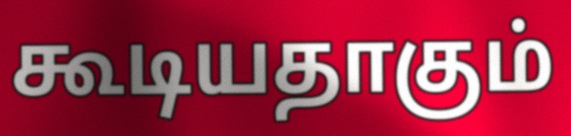
கூடியதாகும்